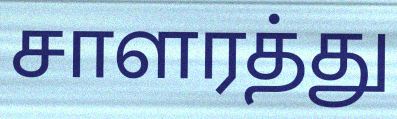
சாளரத்து